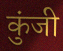
कुंजी